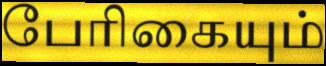
பேரிகையும்